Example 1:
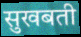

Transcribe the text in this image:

सुखबती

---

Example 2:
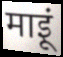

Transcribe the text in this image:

माइूं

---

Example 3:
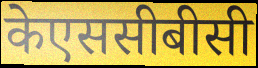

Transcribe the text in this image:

केएससीबीसी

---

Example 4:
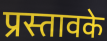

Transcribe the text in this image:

प्रस्तावके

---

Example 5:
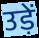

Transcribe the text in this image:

उड़ें